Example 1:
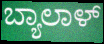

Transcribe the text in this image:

ಬ್ಯಾಲಾಳ್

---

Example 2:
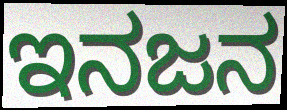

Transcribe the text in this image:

ಇನಜನ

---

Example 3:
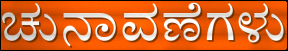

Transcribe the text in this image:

ಚುನಾವಣೆಗಳು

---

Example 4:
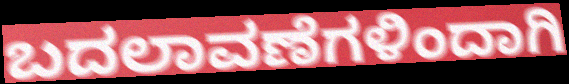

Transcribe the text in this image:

ಬದಲಾವಣೆಗಳಿಂದಾಗಿ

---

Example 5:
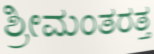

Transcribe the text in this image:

ಶ್ರೀಮಂತರತ್ತ